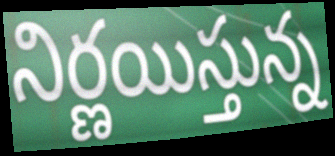
నిర్ణయిస్తున్న